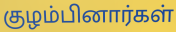
குழம்பினார்கள்